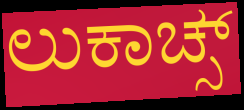
ಲುಕಾಚ್ಸ್